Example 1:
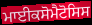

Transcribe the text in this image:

ਮਾਈਕਸੋਮੈਟੋਸਿਸ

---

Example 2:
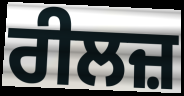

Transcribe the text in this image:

ਰੀਲਜ਼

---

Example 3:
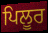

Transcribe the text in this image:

ਪਿਲੂਰ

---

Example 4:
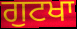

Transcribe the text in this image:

ਗੁਟਖਾ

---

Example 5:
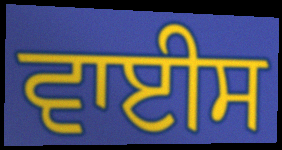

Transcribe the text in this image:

ਵਾਈਸ